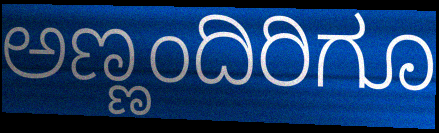
ಅಣ್ಣಂದಿರಿಗೂ